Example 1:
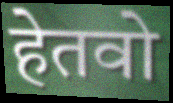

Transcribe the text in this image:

हेतवो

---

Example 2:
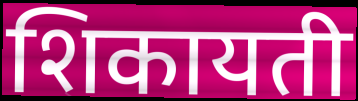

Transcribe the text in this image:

शिकायती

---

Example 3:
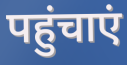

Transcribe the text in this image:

पहुंचाएं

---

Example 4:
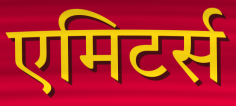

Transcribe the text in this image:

एमिटर्स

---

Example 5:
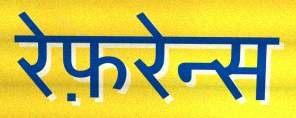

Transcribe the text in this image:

रेफ़रेन्स